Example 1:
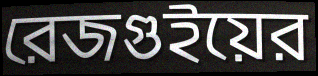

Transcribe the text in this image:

রেজগুইয়ের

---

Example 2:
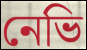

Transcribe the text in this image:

নেভি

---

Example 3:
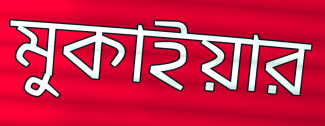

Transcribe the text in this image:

মুকাইয়ার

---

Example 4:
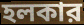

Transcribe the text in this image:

হলকার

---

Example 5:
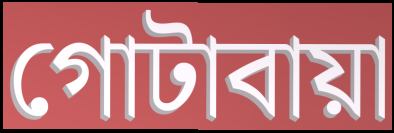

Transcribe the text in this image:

গোটাবায়া